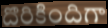
దొరికిందిగా